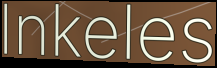
Inkeles